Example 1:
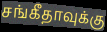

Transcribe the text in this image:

சங்கீதாவுக்கு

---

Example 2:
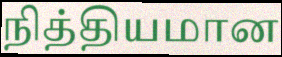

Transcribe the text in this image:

நித்தியமான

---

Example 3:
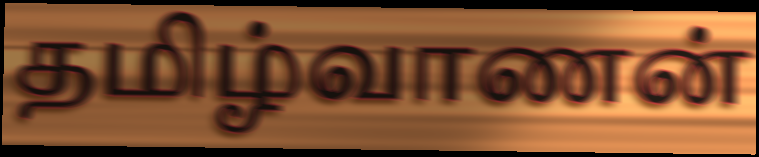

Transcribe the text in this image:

தமிழ்வாணன்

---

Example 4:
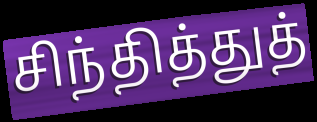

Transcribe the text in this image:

சிந்தித்துத்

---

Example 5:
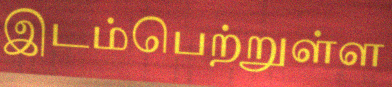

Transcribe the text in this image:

இடம்பெற்றுள்ள